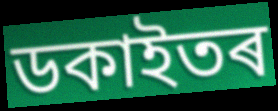
ডকাইতৰ